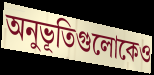
অনুভূতিগুলোকেও